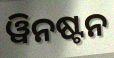
ୱିନଷ୍ଟନ